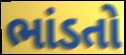
ભાંડતો